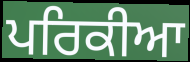
ਪਰਿਕੀਆ